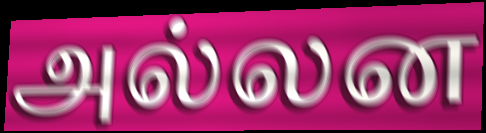
அல்லன